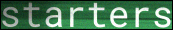
starters